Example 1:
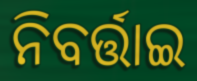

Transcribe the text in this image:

ନିବର୍ତ୍ତାଇ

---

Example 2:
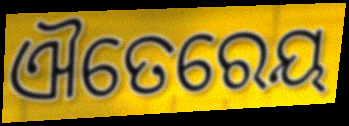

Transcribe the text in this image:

ଐତେରେୟ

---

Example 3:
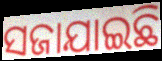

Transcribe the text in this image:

ସଜାଯାଇଛି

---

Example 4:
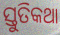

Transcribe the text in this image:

ସ୍ତୁତିକଥା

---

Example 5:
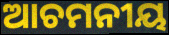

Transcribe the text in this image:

ଆଚମନୀୟ